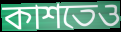
কাশতেও